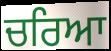
ਚਰਿਆ